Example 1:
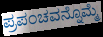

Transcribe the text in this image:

ಪ್ರಪಂಚವನ್ನೊಮ್ಮೆ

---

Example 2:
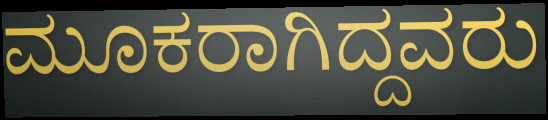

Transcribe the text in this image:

ಮೂಕರಾಗಿದ್ದವರು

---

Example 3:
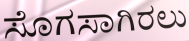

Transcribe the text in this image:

ಸೊಗಸಾಗಿರಲು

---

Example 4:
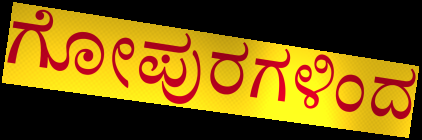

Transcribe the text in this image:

ಗೋಪುರಗಳಿಂದ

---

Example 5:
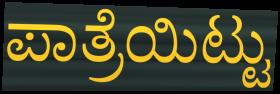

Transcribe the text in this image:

ಪಾತ್ರೆಯಿಟ್ಟು